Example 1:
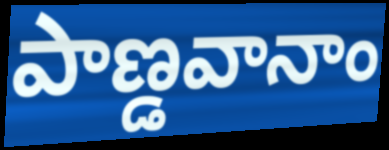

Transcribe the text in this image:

పాణ్డవానాం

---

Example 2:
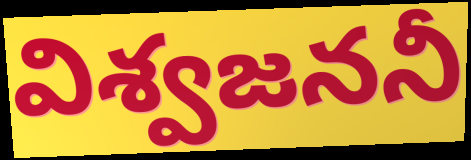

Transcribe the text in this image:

విశ్వజననీ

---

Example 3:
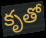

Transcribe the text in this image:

కృతో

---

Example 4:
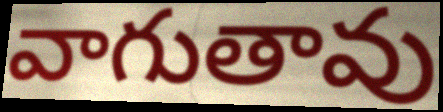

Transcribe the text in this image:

వాగుతావు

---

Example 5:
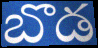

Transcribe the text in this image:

బొడ